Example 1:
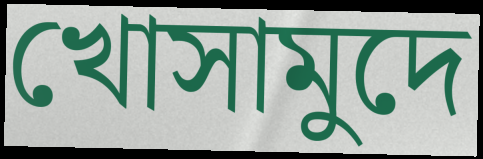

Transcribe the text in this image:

খোসামুদে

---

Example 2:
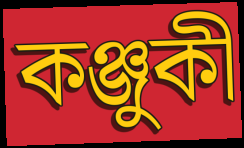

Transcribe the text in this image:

কঞ্জুকী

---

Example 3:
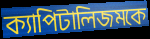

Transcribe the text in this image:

ক্যাপিটালিজমকে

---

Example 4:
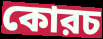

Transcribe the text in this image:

কোরচ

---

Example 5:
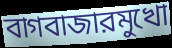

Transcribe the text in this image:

বাগবাজারমুখো